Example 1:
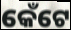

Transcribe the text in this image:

କେଁଟେ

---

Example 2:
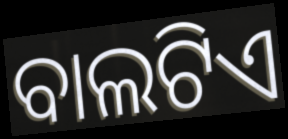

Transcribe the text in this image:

ବାଲଟିଏ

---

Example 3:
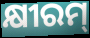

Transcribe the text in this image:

କ୍ଷୀରମ୍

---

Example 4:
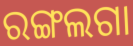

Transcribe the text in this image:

ରଙ୍ଗଲଗା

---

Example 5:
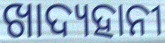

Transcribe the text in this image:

ଖାଦ୍ୟହାନୀ